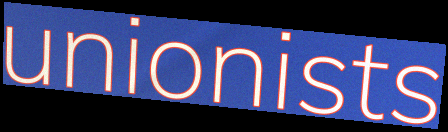
unionists